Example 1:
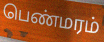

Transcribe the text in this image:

பெண்மரம்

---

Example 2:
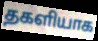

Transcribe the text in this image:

தகளியாக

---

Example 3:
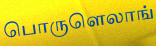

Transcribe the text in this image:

பொருளெலாங்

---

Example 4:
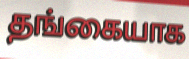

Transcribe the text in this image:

தங்கையாக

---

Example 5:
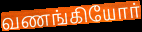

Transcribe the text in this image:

வணங்கியோர்